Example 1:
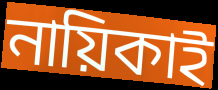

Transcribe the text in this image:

নায়িকাই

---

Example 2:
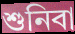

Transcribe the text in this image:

শুনিবা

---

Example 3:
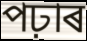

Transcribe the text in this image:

পঢ়াৰ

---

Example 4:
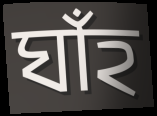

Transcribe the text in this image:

ঘাঁহ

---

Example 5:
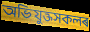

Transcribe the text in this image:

অভিযুক্তসকলৰ